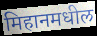
मिहानमधील